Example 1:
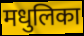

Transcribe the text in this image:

मधुलिका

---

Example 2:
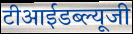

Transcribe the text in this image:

टीआईडब्ल्यूजी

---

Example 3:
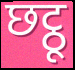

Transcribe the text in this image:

छट्ठू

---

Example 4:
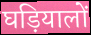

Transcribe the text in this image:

घड़ियालों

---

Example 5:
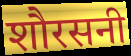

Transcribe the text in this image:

शौरसनी